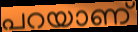
പറയാണ്